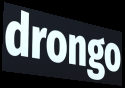
drongo